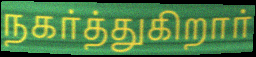
நகர்த்துகிறார்